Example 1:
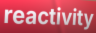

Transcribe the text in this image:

reactivity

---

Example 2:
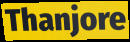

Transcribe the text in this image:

Thanjore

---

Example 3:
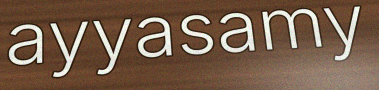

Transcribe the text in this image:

ayyasamy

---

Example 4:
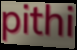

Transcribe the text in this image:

pithi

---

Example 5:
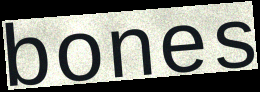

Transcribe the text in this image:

bones